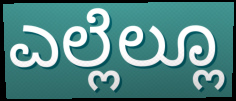
ಎಲ್ಲೆಲ್ಲೂ